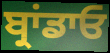
ਬ੍ਰਾਂਡਾਓ